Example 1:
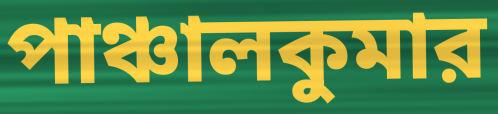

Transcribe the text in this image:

পাঞ্চালকুমার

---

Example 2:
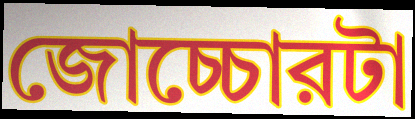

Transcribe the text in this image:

জোচ্চোরটা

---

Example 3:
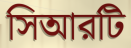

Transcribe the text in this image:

সিআরটি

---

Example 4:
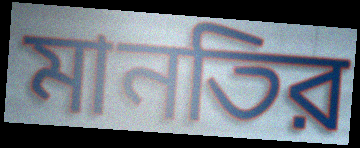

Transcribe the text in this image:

মানতির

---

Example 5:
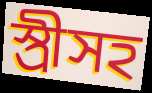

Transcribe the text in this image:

স্ত্রীসহ